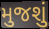
મુજશું